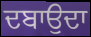
ਦਬਾਉਦਾ